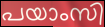
പയാംസി